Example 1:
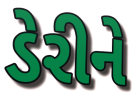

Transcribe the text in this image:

ડેરીને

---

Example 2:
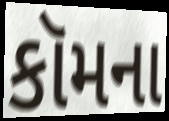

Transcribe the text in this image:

કૉમના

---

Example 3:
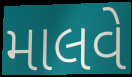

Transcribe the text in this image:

માલવે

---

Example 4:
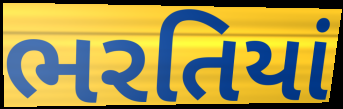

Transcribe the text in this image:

ભરતિયાં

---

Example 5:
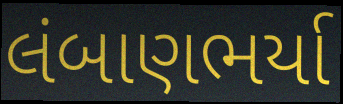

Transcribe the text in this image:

લંબાણભર્યા